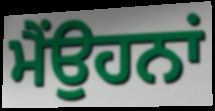
ਮੈਂਉਹਨਾਂ